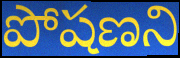
పోషణని